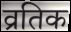
व्रतिक